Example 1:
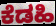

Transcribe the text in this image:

ಕೆಡಹಿ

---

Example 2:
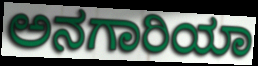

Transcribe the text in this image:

ಅನಗಾರಿಯಾ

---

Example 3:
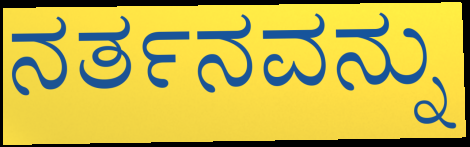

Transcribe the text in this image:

ನರ್ತನವನ್ನು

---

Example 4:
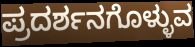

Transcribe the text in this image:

ಪ್ರದರ್ಶನಗೊಳ್ಳುವ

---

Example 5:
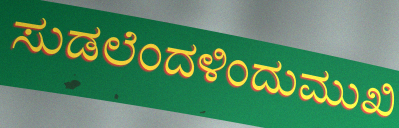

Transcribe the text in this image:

ಸುಡಲೆಂದಳಿಂದುಮುಖಿ